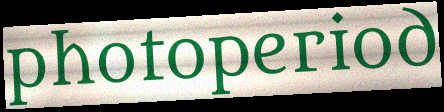
photoperiod